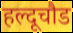
हल्दूचौड